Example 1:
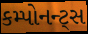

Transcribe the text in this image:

કમ્પોનન્ટ્સ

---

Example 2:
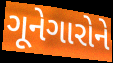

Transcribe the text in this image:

ગૂનેગારોને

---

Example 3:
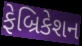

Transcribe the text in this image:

ફેબ્રિકેશન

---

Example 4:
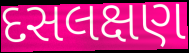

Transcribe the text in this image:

દસલક્ષણ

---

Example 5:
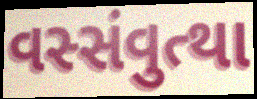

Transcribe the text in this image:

વસ્સંવુત્થા